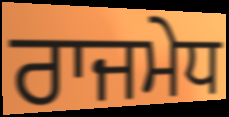
ਰਾਜਮੇਧ